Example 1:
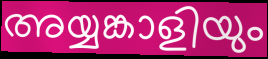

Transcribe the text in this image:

അയ്യങ്കാളിയും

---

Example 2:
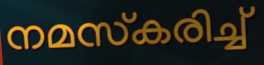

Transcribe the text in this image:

നമസ്‌കരിച്ച്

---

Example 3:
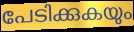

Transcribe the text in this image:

പേടിക്കുകയും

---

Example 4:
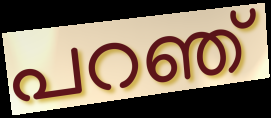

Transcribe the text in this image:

പറഞ്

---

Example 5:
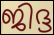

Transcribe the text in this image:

ജിദ്ദ